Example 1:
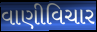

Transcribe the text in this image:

વાણીવિચાર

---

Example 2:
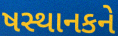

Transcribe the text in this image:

ષસ્થાનકને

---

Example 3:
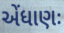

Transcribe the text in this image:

એંધાણઃ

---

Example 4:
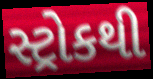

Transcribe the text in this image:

સ્ટ્રોકથી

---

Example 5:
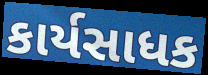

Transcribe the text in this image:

કાર્યસાધક